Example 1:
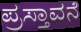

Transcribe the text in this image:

ಪ್ರಸ್ತಾವನೆ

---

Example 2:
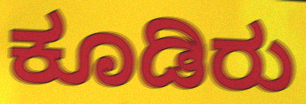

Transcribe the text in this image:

ಕೂಡಿರು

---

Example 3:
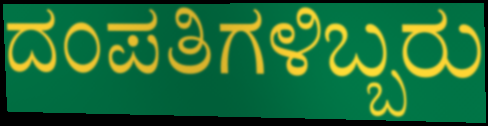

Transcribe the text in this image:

ದಂಪತಿಗಳಿಬ್ಬರು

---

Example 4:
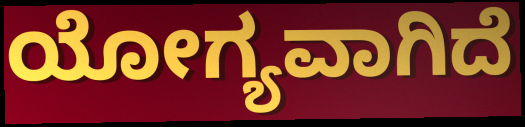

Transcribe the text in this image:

ಯೋಗ್ಯವಾಗಿದೆ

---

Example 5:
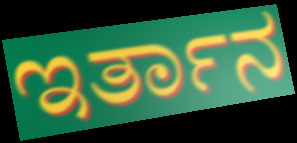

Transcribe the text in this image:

ಇರ್ತಾನ